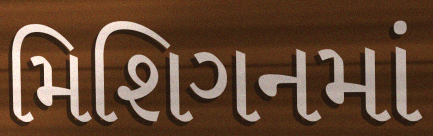
મિશિગનમાં